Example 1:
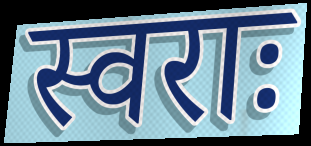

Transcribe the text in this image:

स्वराः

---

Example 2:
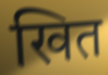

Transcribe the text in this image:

खित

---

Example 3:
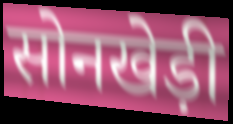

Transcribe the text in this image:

सोनखेड़ी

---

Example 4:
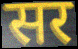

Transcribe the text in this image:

सर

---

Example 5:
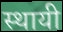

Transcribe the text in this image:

स्थायी